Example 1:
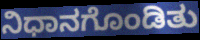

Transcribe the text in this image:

ನಿಧಾನಗೊಂಡಿತು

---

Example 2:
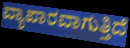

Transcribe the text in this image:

ವ್ಯಾಪಾರವಾಗುತ್ತಿದೆ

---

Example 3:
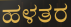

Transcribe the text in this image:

ಹಳತರ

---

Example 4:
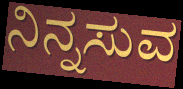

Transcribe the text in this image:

ನಿನ್ನಸುವ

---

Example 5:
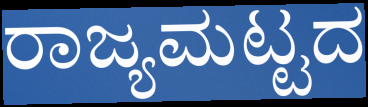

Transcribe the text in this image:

ರಾಜ್ಯಮಟ್ಟದ